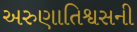
અરુણાતિશ્વસની